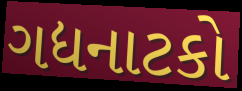
ગદ્યનાટકો